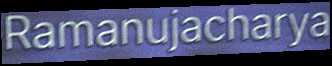
Ramanujacharya